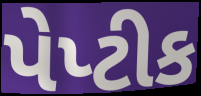
પેપ્ટીક